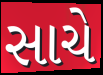
સાચે